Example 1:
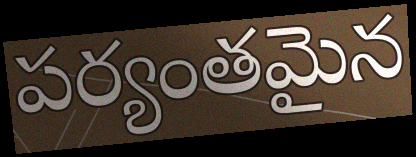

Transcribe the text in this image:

పర్యంతమైన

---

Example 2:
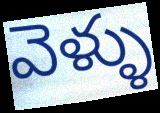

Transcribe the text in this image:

వెళ్ళు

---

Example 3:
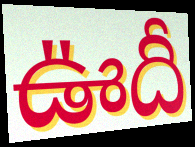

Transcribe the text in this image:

ఊదీ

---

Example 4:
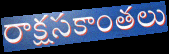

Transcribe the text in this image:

రాక్షసకాంతలు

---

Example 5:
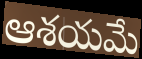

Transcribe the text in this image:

ఆశయమే